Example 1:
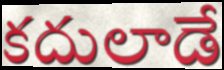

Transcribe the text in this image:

కదులాడే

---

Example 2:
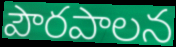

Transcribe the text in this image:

పౌరపాలన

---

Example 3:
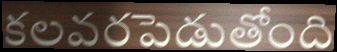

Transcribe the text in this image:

కలవరపెడుతోంది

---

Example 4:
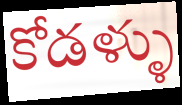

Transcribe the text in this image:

కోడళ్ళు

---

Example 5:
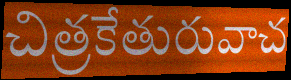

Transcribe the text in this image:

చిత్రకేతురువాచ